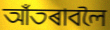
আঁতৰাবলৈ